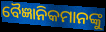
ବୈଜ୍ଞାନିକମାନଙ୍କୁ